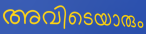
അവിടെയാരും